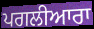
ਪਗਲੀਆਰਾ